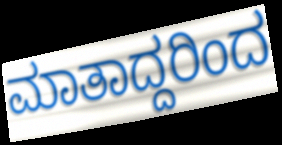
ಮಾತಾದ್ದರಿಂದ